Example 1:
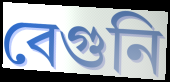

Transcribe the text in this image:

বেগুনি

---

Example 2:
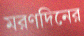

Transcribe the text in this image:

মরণদিনের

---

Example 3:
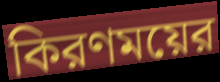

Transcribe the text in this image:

কিরণময়ের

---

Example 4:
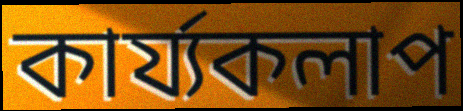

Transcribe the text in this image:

কার্য্যকলাপ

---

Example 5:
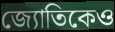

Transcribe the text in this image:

জ্যোতিকেও